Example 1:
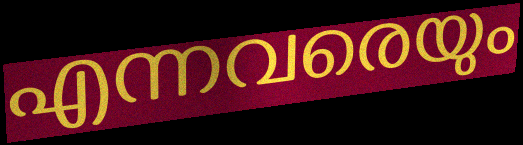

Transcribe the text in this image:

എന്നവരെയും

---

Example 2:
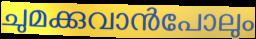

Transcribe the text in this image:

ചുമക്കുവാൻപോലും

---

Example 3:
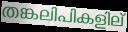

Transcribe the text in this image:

തങ്കലിപികളില്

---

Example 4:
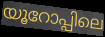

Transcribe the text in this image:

യൂറോപ്പിലെ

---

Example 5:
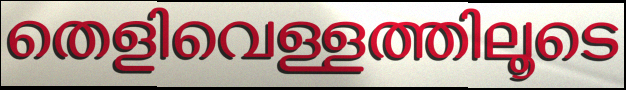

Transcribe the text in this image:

തെളിവെള്ളത്തിലൂടെ